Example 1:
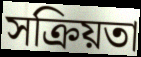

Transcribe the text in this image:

সক্ৰিয়তা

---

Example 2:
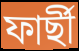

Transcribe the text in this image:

ফাৰ্ছী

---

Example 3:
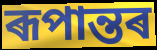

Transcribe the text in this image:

ৰূপান্তৰ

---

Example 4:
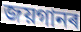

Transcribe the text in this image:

জয়গানৰ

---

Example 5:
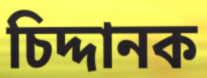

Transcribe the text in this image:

চিদ্দানক